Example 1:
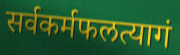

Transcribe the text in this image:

सर्वकर्मफलत्यागं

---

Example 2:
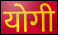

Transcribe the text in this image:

योगी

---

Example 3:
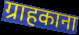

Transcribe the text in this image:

ग्राहकाना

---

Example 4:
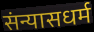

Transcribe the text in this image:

संन्यासधर्म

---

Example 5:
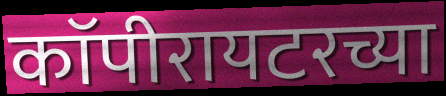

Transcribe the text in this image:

कॉपीरायटरच्या